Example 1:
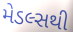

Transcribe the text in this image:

મેડલ્સથી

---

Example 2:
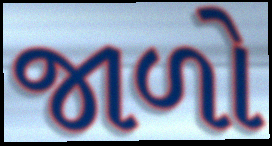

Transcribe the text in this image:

જાળો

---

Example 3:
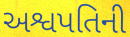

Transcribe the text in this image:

અશ્વપતિની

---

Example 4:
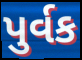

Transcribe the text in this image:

પુર્વક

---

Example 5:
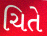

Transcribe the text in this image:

ચિતે